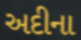
અદીના